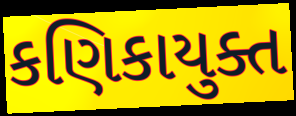
કણિકાયુક્ત